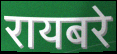
रायबरे